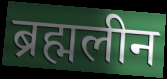
ब्रह्मलीन